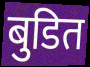
बुडित